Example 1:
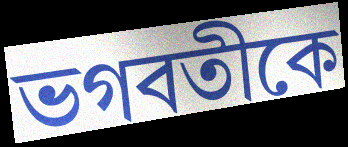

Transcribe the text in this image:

ভগবতীকে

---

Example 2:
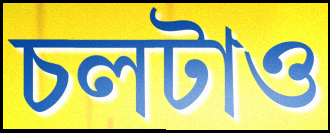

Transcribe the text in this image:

চলটাও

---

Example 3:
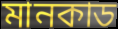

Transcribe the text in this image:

মানকাড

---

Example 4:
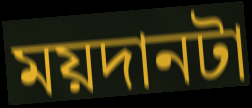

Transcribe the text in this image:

ময়দানটা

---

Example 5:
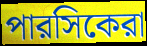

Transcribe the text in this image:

পারসিকেরা